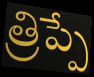
త్రిప్పే